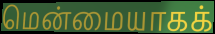
மென்மையாகக்